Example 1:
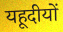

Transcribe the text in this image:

यहूदीयों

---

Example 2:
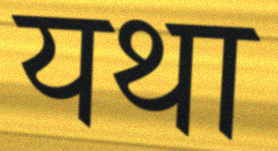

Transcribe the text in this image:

यथा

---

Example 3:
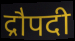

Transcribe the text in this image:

द्रौपदी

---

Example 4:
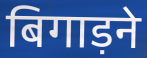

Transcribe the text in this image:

बिगाड़ने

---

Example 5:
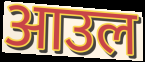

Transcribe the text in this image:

आउल